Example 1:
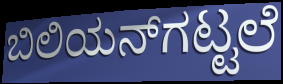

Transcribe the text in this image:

ಬಿಲಿಯನ್‌ಗಟ್ಟಲೆ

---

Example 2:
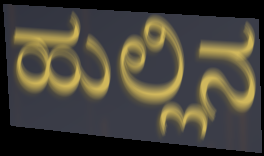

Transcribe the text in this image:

ಹುಲ್ಲಿನ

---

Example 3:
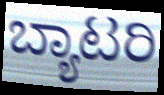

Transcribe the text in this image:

ಬ್ಯಾಟರಿ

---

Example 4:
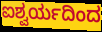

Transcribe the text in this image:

ಐಶ್ವರ್ಯದಿಂದ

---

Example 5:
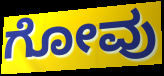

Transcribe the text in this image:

ಗೋವು